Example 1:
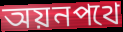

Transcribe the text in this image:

অয়নপথে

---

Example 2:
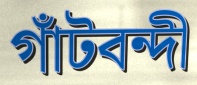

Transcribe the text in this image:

গাঁটবন্দী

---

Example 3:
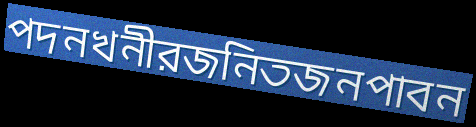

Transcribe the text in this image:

পদনখনীরজনিতজনপাবন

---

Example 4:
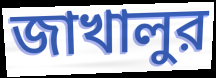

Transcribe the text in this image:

জাখালুর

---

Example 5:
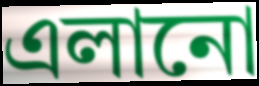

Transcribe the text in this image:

এলানো